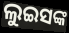
ଲୁଇସଙ୍କ